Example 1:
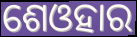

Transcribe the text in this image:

ଶେଓହାର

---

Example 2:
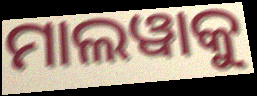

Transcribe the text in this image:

ମାଲୱାକୁ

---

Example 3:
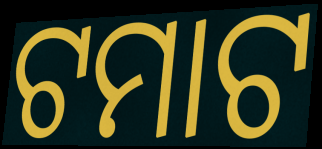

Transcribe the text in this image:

ଟମାଟ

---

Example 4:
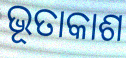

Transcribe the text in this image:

ଭୂତାକାଶ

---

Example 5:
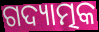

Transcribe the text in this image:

ଗଦ୍ୟାତ୍ମକ